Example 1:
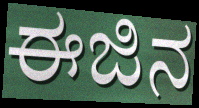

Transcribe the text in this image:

ಈಜಿನ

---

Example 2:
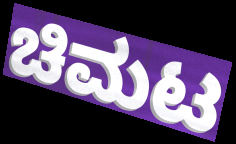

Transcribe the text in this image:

ಚಿಮಟ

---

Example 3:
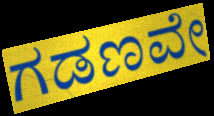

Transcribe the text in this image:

ಗಡಣವೇ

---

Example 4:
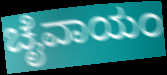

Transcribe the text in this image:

ಚೈವಾಯಂ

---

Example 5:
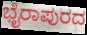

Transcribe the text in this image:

ಭೈರಾಪುರದ